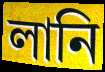
লানি